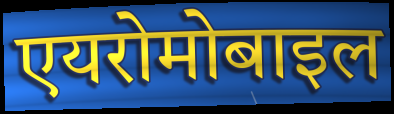
एयरोमोबाइल